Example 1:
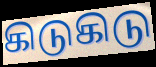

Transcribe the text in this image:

கிடுகிடு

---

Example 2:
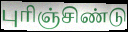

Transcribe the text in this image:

புரிஞ்சிண்டு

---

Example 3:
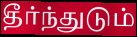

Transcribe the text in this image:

தீர்ந்துடும்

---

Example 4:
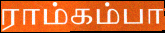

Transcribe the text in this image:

ராம்கம்பா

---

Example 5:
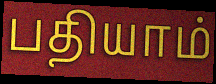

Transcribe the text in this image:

பதியாம்